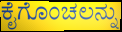
ಕೈಗೊಂಚಲನ್ನು